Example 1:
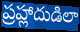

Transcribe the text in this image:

ప్రహ్లాదుడిలా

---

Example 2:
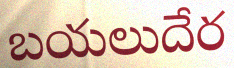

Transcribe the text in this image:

బయలుదేర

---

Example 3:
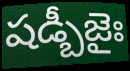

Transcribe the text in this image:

షడ్బీజైః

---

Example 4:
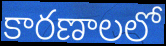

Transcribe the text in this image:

కారణాలలో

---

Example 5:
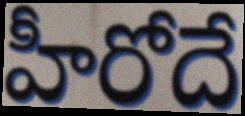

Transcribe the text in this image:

హీరోదే